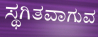
ಸ್ಥಗಿತವಾಗುವ